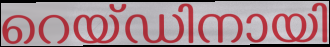
റെയ്ഡിനായി